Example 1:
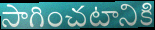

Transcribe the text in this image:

సాగించటానికి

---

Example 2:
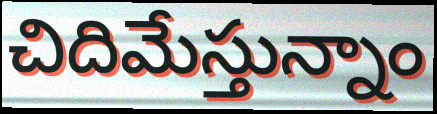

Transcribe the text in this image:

చిదిమేస్తున్నాం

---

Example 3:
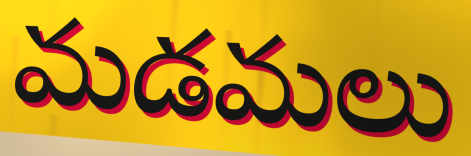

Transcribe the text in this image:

మడమలు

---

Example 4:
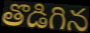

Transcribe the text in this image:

తొడిగిన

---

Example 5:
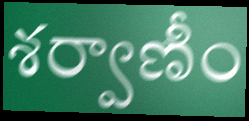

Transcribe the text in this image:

శర్వాణీం